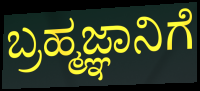
ಬ್ರಹ್ಮಜ್ಞಾನಿಗೆ